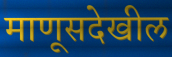
माणूसदेखील